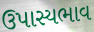
ઉપાસ્યભાવ